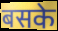
बसके